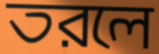
তরলে